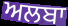
ਅਲਬਾ